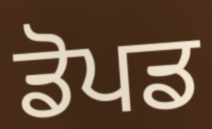
ਡੋਪਡ